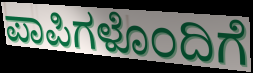
ಪಾಪಿಗಳೊಂದಿಗೆ